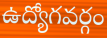
ఉద్యోగవర్గం